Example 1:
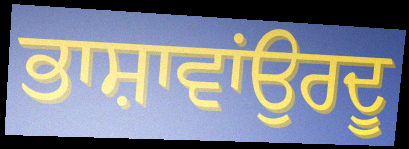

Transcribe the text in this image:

ਭਾਸ਼ਾਵਾਂਉਰਦੂ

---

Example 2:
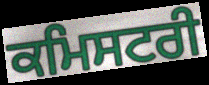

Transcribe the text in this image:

ਕਮਿਸਟਰੀ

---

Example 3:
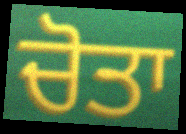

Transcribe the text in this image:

ਚੋਤਾ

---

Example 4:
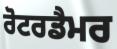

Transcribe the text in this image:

ਰੋਟਰਡੈਮਰ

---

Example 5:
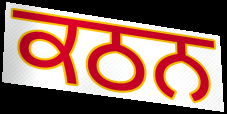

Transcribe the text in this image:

ਕਠਨ